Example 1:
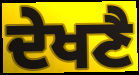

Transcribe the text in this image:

ਦੇਖਣੈ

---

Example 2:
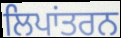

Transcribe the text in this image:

ਲਿਪਾਂਤਰਨ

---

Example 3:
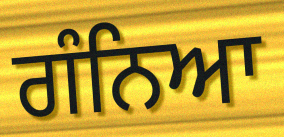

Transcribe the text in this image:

ਗੰਨਿਆ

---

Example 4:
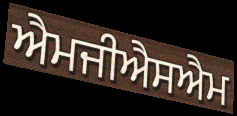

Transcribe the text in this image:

ਐਮਜੀਐਸਐਮ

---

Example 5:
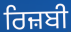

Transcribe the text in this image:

ਰਿਜ਼ਬੀ